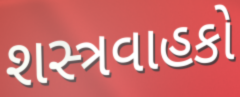
શસ્ત્રવાહકો